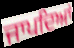
ਜਾਪਦਿਆਂ